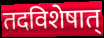
तदविशेषात्